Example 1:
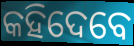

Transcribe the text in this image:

କହିଦେବେ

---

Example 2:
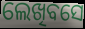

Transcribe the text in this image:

ଲେଖିବସେ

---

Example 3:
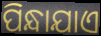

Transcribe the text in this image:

ପିନ୍ଧାଯାଏ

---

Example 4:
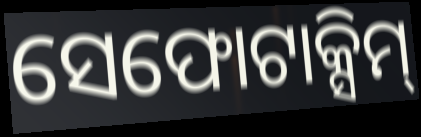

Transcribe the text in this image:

ସେଫୋଟାକ୍ସିମ୍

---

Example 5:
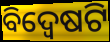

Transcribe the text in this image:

ବିଦ୍ୱେଷଟି